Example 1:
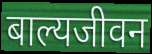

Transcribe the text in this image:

बाल्यजीवन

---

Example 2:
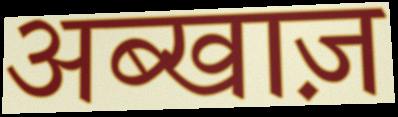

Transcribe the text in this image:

अब्खाज़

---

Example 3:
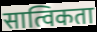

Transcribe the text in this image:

सात्विकता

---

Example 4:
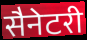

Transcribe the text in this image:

सैनेटरी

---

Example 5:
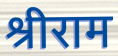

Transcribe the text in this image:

श्रीराम